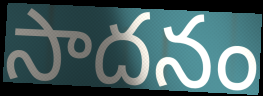
సాదనం